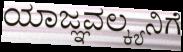
ಯಾಜ್ಞವಲ್ಕ್ಯನಿಗೆ